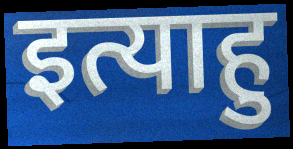
इत्याहु